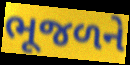
ભૂજળને